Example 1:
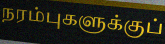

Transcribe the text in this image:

நரம்புகளுக்குப்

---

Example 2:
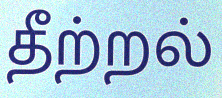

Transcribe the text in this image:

தீற்றல்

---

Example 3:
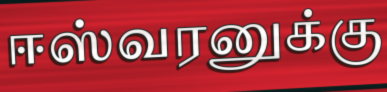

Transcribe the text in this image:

ஈஸ்வரனுக்கு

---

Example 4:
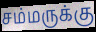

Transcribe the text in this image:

சம்மருக்கு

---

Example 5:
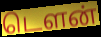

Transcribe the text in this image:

டௌன்